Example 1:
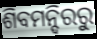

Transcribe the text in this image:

ଶିବମନ୍ଦିରରୁ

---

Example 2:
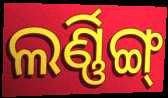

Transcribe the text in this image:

ଲର୍ଣ୍ଣିଙ୍ଗ୍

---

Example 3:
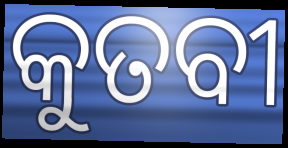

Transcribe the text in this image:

କୁତବୀ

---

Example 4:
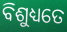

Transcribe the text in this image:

ବିଶୁଧ୍ୟତେ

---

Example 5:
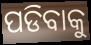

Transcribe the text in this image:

ପଡିବାକୁ